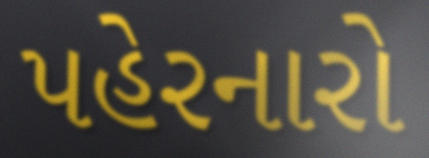
પહેરનારો